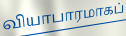
வியாபாரமாகப்